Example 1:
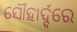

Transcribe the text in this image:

ସୌହାର୍ଦ୍ଦରେ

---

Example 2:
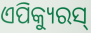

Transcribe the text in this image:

ଏପିକ୍ୟୁରସ୍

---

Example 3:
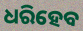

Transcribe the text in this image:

ଧରିହେବ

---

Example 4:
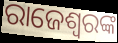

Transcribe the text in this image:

ରାଜେଶ୍ୱରଙ୍କ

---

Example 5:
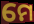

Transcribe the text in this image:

ମେ